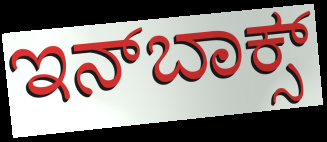
ಇನ್‍ಬಾಕ್ಸ್